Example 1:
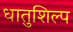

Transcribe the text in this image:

धातुशिल्प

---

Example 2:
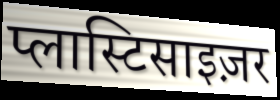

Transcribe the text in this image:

प्लास्टिसाइज़र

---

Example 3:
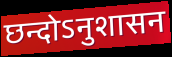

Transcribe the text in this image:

छन्दोऽनुशासन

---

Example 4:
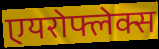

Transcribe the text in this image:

एयरोफ्लेक्स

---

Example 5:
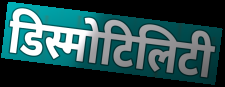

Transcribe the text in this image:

डिस्मोटिलिटी